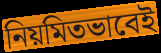
নিয়মিতভাবেই